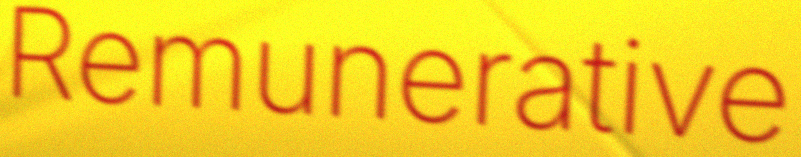
Remunerative